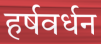
हर्षवर्धन